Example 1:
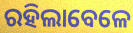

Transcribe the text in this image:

ରହିଲାବେଳେ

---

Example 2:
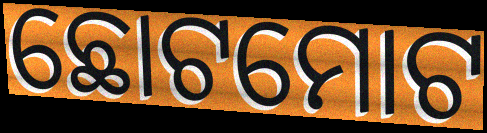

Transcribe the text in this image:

ଛୋଟମୋଟ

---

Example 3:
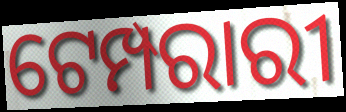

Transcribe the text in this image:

ଟେମ୍ପରାରୀ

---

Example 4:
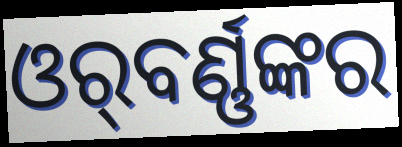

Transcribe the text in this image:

ଓର୍‌ବର୍ଣ୍ଣଙ୍କର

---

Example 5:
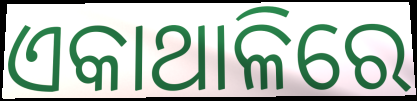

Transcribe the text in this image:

ଏକାଥାଳିରେ